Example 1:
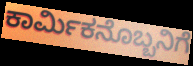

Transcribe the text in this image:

ಕಾರ್ಮಿಕನೊಬ್ಬನಿಗೆ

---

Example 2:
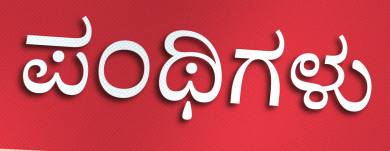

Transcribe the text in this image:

ಪಂಥಿಗಳು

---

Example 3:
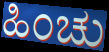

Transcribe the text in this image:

ಹಿಂಚು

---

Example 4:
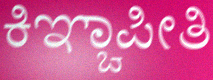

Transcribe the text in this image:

ಕಿಞ್ಚಾಪೀತಿ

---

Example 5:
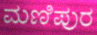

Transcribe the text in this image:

ಮಣಿಪುರ